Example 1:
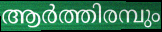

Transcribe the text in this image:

ആർത്തിരമ്പും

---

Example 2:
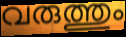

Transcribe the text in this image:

വരുത്തും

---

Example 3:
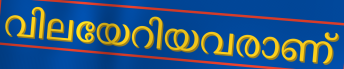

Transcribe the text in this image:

വിലയേറിയവരാണ്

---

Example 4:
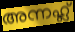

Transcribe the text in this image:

അന്നഹ്ല്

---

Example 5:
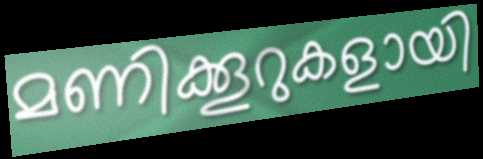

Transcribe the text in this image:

മണിക്കൂറുകളായി